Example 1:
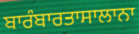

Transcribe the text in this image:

ਬਾਰੰਬਾਰਤਾਸਾਲਾਨਾ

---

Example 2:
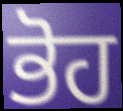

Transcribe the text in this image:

ਭੋਹ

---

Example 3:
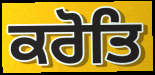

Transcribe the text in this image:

ਕਰੋਤਿ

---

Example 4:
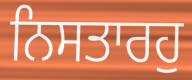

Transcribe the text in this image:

ਨਿਸਤਾਰਹੁ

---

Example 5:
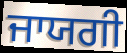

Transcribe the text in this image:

ਜਾਯਗੀ